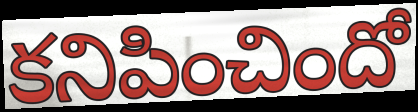
కనిపించిందో